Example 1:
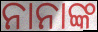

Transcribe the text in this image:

ନାନାଙ୍କ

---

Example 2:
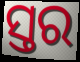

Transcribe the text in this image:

ସ୍ତର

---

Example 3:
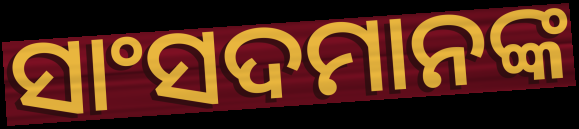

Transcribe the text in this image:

ସାଂସଦମାନଙ୍କ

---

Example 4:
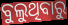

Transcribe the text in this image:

ବୁଲୁଥିବାରୁ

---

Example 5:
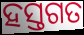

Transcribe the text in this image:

ହସ୍ତଗତ